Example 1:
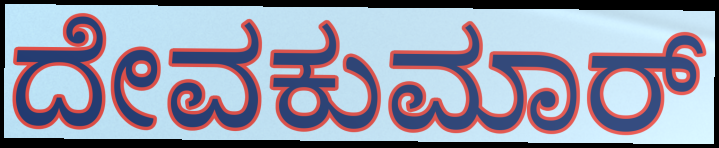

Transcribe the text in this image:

ದೇವಕುಮಾರ್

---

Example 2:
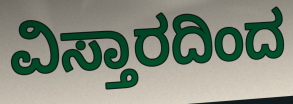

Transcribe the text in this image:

ವಿಸ್ತಾರದಿಂದ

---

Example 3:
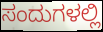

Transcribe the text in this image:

ಸಂದುಗಳಲ್ಲಿ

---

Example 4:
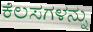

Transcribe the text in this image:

ಕೆಲಸಗಳನ್ನು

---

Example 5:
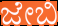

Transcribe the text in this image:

ಜೇಬಿ